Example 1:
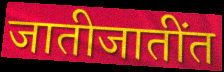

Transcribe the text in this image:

जातीजातींत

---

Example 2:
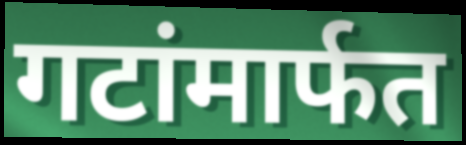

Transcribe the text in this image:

गटांमार्फत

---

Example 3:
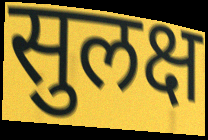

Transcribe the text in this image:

सुलक्ष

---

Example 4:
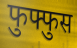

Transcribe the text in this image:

फुफ्फुस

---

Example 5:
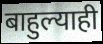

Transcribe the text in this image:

बाहुल्याही